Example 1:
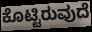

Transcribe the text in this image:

ಕೊಟ್ಟಿರುವುದೆ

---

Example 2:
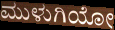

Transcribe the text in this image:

ಮುಳುಗಿಯೋ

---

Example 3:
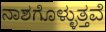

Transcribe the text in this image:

ನಾಶಗೊಳ್ಳುತ್ತವೆ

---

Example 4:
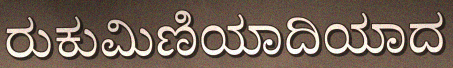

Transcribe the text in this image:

ರುಕುಮಿಣಿಯಾದಿಯಾದ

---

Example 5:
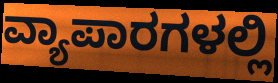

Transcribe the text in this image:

ವ್ಯಾಪಾರಗಳಲ್ಲಿ